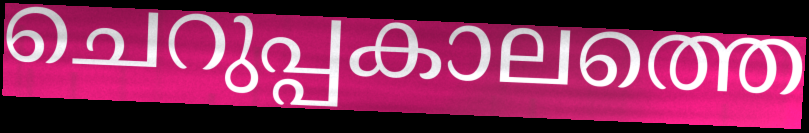
ചെറുപ്പകാലത്തെ